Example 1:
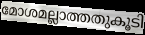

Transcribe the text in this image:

മോശമല്ലാത്തതുകൂടി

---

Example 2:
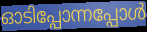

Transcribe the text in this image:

ഓടിപ്പോന്നപ്പോൾ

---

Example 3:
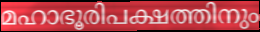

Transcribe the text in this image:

മഹാഭൂരിപക്ഷത്തിനും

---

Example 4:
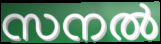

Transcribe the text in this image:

സനൽ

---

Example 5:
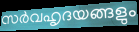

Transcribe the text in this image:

സർവഹൃദയങ്ങളും